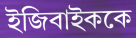
ইজিবাইককে